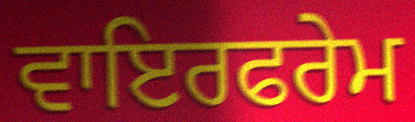
ਵਾਇਰਫਰੇਮ